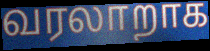
வரலாறாக